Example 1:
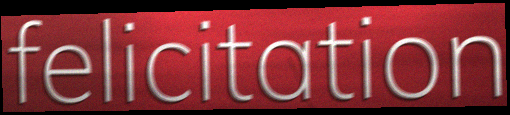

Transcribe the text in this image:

felicitation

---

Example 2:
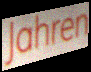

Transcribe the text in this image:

Jahren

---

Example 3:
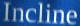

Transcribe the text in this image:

Incline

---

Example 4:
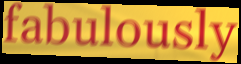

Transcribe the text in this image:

fabulously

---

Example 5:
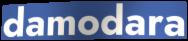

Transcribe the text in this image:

damodara